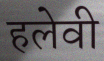
हलेवी